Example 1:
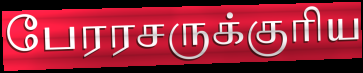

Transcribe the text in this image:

பேரரசருக்குரிய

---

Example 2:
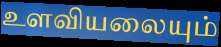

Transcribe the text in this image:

உளவியலையும்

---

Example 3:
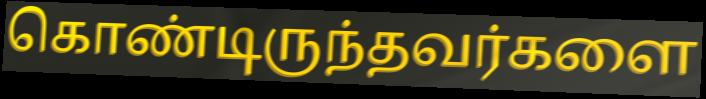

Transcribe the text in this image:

கொண்டிருந்தவர்களை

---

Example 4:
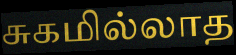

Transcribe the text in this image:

சுகமில்லாத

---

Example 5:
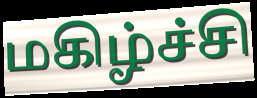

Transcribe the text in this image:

மகிழ்ச்சி